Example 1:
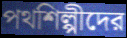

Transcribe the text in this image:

পথশিল্পীদের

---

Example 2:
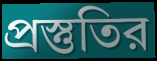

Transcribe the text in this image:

প্রস্তুতির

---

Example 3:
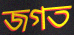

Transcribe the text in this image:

জগত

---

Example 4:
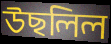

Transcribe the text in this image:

উছলিল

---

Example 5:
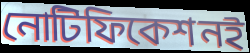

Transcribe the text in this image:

নোটিফিকেশনই